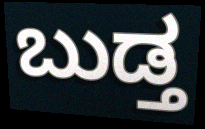
ಬುಡ್ತ